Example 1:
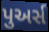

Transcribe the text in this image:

પુઅર્સ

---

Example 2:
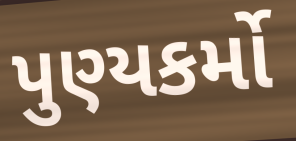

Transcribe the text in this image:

પુણ્યકર્મો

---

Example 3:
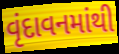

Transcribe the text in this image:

વૃંદાવનમાંથી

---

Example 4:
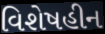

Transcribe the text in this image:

વિશેષહીન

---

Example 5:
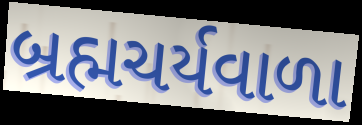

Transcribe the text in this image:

બ્રહ્મચર્યવાળા